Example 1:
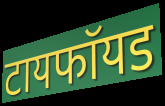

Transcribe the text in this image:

टायफॉयड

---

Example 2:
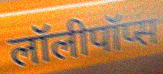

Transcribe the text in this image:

लॉलीपॉप्स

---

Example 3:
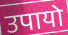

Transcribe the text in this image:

उपायो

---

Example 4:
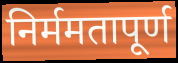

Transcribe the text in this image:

निर्ममतापूर्ण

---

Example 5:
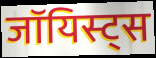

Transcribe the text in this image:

जॉयिस्ट्स